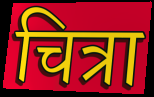
चित्रा